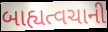
બાહ્યત્વચાની